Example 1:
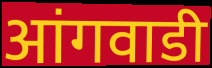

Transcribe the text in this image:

आंगवाडी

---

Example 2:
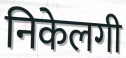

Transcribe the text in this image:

निकेलगी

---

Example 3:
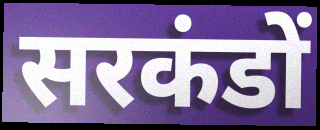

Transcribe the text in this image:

सरकंडों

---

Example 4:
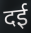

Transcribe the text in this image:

दई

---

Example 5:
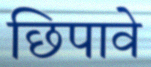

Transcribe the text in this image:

छिपावे